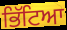
ਭਿੱਟਿਆ